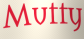
Mutty